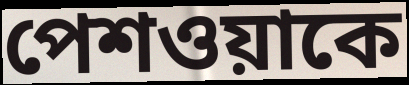
পেশওয়াকে